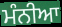
ਮੰਨੀਆ